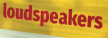
loudspeakers